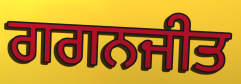
ਗਗਨਜੀਤ